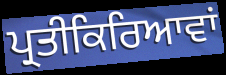
ਪ੍ਰਤੀਕਿਰਿਆਵਾਂ